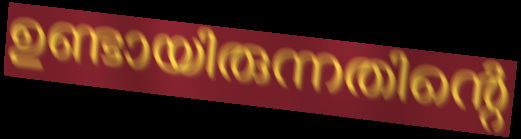
ഉണ്ടായിരുന്നതിന്റെ